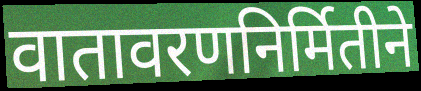
वातावरणनिर्मितीने